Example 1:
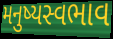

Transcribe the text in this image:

મનુષ્યસ્વભાવ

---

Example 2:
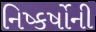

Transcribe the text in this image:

નિષ્કર્ષોની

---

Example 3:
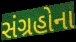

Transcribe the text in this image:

સંગ્રહોના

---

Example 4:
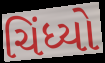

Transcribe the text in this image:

ચિંધ્યો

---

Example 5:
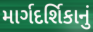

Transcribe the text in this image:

માર્ગદર્શિકાનું